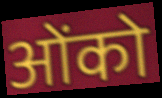
ओंको